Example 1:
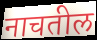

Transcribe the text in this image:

नाचतील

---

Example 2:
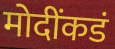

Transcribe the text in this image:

मोदींकडं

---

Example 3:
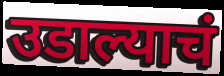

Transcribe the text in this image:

उडाल्याचं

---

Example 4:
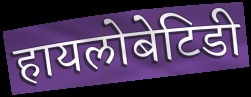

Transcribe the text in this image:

हायलोबेटिडी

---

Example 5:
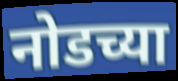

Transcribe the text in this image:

नोडच्या